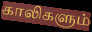
காலிகளும்